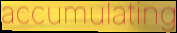
accumulating